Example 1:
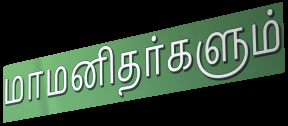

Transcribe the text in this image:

மாமனிதர்களும்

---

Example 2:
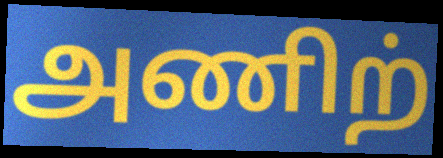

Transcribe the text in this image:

அணிற்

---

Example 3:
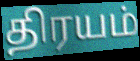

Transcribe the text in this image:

திரயம்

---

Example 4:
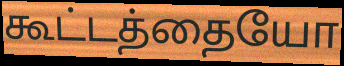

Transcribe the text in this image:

கூட்டத்தையோ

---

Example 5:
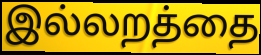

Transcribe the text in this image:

இல்லறத்தை